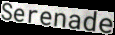
Serenade